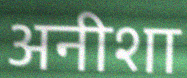
अनीशा